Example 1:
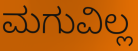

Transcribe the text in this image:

ಮಗುವಿಲ್ಲ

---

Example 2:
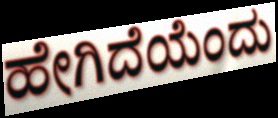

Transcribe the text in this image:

ಹೇಗಿದೆಯೆಂದು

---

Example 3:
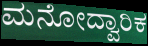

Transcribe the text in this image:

ಮನೋದ್ವಾರಿಕ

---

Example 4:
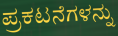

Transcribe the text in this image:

ಪ್ರಕಟನೆಗಳನ್ನು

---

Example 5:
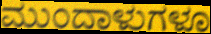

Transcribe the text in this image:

ಮುಂದಾಳುಗಳೂ